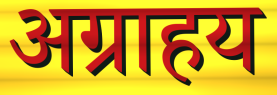
अग्राहय